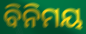
ବିନିମୟ